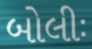
બોલીઃ